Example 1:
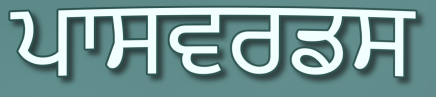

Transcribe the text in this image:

ਪਾਸਵਰਡਸ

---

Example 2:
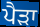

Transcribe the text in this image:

ਪੈੜਾ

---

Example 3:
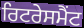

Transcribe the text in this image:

ਰਿਟਰੇਸਮੈਂਟ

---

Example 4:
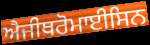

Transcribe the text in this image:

ਐਜੀਥਰੋਮਾਈਸਿਨ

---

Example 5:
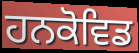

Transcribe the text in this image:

ਹਨਕੋਵਿਡ